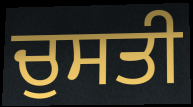
ਚੁਸਤੀ